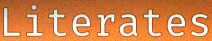
Literates